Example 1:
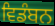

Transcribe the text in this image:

ਵਿਡੰਬਨ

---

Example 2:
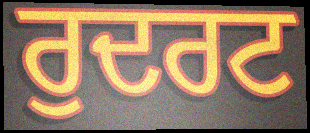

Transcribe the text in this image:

ਰੁਦਰਟ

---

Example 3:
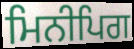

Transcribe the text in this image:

ਮਿਨੀਪਿਗ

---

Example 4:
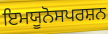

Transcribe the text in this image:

ਇਮਯੂਨੋਸਪਰਸ਼ਨ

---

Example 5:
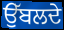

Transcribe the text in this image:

ਉੱਬਲਦੇ